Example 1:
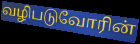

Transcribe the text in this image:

வழிபடுவோரின்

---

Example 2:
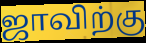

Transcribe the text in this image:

ஜாவிற்கு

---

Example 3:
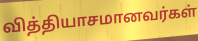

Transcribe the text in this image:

வித்தியாசமானவர்கள்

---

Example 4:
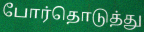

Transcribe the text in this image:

போர்தொடுத்து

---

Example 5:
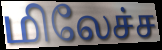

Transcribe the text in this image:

மிலேச்ச